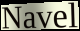
Navel